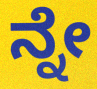
ನ್ನೇ